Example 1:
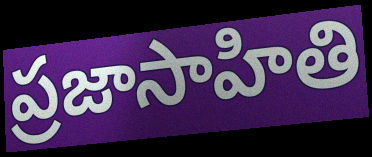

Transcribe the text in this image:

ప్రజాసాహితి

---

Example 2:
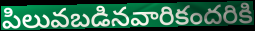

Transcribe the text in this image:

పిలువబడినవారికందరికి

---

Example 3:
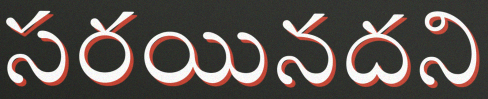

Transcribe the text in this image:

సరయినదని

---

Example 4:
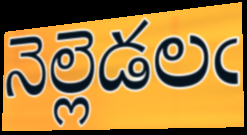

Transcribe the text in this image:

నెల్లెడలఁ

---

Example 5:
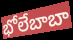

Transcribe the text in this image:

భోలేబాబా